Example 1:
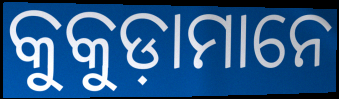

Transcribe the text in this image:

କୁକୁଡ଼ାମାନେ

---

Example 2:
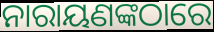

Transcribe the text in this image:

ନାରାୟଣଙ୍କଠାରେ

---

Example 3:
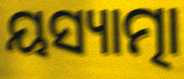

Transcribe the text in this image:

ୟସ୍ୟାତ୍ମା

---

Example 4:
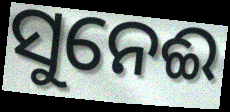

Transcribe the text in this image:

ସୁନେଈ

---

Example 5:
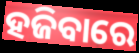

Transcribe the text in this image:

ହଜିବାରେ